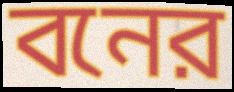
বনের